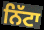
ਨਿੱਟਾ